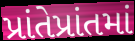
પ્રાંતેપ્રાંતમાં